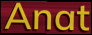
Anat